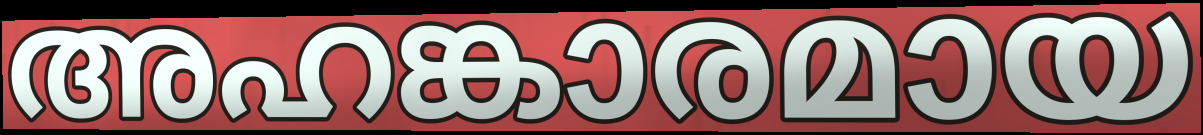
അഹങ്കാരമായ